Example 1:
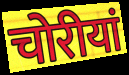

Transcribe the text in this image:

चोरीयां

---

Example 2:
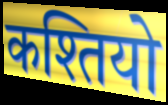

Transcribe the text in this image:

कश्तियो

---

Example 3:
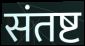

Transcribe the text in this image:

संतष्ट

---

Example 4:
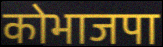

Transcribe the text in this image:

कोभाजपा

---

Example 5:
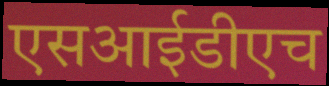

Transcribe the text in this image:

एसआईडीएच